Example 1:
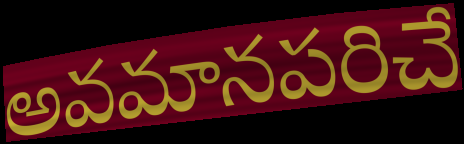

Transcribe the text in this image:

అవమానపరిచే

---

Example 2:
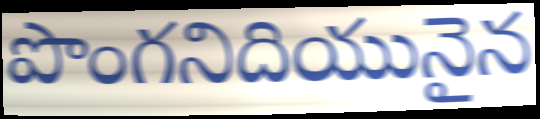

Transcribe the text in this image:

పొంగనిదియునైన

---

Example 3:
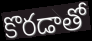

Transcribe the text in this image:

కొరడాతో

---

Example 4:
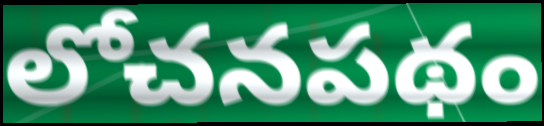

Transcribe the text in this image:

లోచనపథం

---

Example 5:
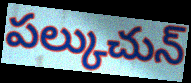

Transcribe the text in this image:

పల్కుచున్